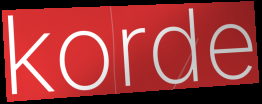
korde